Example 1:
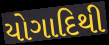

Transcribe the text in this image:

યોગાદિથી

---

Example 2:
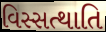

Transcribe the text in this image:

વિસ્સત્થાતિ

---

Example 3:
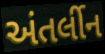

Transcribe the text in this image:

અંતર્લીન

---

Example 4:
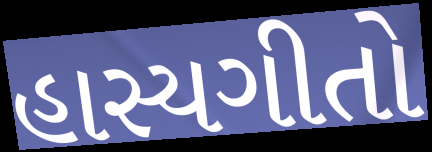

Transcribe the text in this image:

હાસ્યગીતો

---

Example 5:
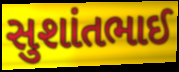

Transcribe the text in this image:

સુશાંતભાઈ